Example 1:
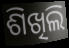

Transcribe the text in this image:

ଶିଖିଲି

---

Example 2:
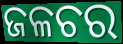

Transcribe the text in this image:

ଜଳଚର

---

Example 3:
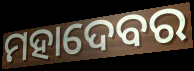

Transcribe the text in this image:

ମହାଦେବର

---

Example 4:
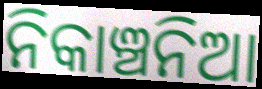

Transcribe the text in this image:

ନିକାଞ୍ଚନିଆ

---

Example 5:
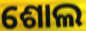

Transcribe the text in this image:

ଶୋଲ